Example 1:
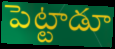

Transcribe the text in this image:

పెట్టాడూ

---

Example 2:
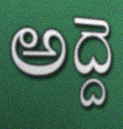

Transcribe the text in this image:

అద్దె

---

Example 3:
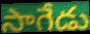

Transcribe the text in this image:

సాగేడు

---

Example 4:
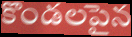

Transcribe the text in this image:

కొండలపైన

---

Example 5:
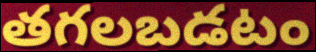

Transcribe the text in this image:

తగలబడటం